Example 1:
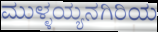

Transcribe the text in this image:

ಮುಳ್ಳಯ್ಯನಗಿರಿಯ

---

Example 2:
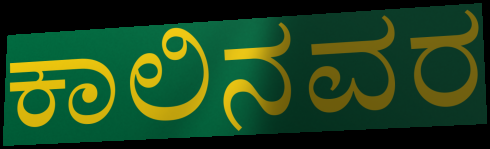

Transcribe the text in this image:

ಕಾಲಿನವರ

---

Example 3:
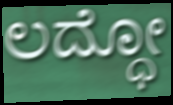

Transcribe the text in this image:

ಲದ್ಧೋ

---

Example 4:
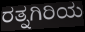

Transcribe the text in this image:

ರತ್ನಗಿರಿಯ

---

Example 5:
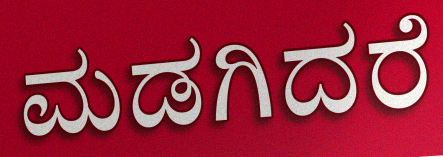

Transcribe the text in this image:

ಮಡಗಿದರೆ